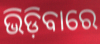
ଭିଡ଼ିବାରେ